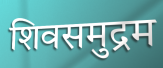
शिवसमुद्रम